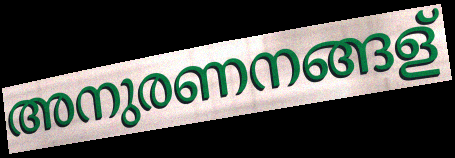
അനുരണനങ്ങള്